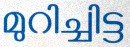
മുറിച്ചിട്ട